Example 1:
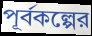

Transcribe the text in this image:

পূর্বকল্পের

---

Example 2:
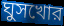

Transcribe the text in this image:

ঘুসখোর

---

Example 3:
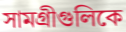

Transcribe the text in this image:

সামগ্রীগুলিকে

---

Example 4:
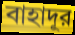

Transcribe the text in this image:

বাহাদূর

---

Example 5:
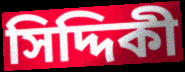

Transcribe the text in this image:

সিদ্দিকী